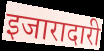
इजारादारी